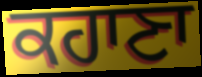
ਕਹਾਣਾ